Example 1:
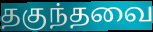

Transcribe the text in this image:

தகுந்தவை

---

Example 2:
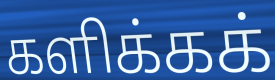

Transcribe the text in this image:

களிக்கக்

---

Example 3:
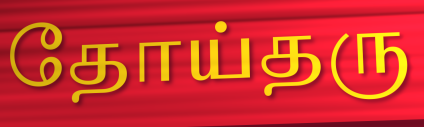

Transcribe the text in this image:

தோய்தரு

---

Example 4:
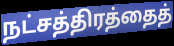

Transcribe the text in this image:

நட்சத்திரத்தைத்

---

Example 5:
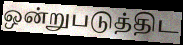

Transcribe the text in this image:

ஒன்றுபடுத்திட